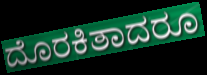
ದೊರಕಿತಾದರೂ